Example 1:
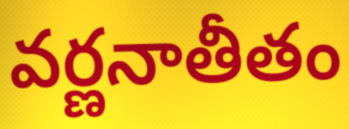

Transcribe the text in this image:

వర్ణనాతీతం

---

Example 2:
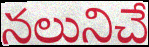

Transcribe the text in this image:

నలునిచే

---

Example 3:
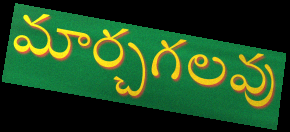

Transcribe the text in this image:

మార్చగలవు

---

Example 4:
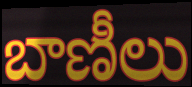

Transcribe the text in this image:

బాణీలు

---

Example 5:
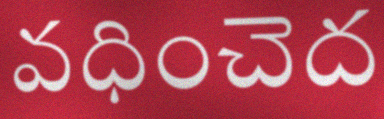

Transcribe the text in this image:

వధించెద